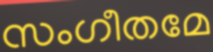
സംഗീതമേ